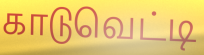
காடுவெட்டி